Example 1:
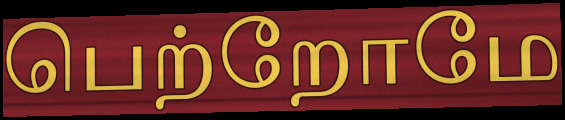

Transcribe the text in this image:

பெற்றோமே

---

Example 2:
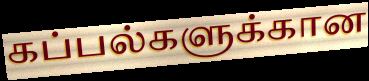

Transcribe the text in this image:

கப்பல்களுக்கான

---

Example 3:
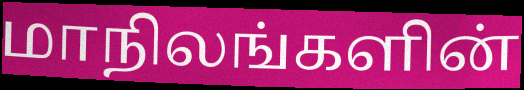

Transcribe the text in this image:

மாநிலங்களின்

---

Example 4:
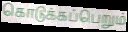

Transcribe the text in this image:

கொடுக்கப்பெறும்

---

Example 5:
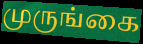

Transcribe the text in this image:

முருங்கை